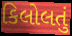
કિલોલતું